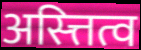
अस्त्तित्व